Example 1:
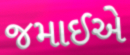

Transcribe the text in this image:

જમાઈએ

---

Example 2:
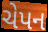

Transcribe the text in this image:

ચેપન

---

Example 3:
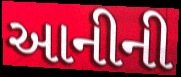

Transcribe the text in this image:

આનીની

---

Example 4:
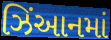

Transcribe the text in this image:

ઝિંઆનમાં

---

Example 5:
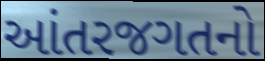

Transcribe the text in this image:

આંતરજગતનો